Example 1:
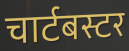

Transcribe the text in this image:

चार्टबस्टर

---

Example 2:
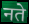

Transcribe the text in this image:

नते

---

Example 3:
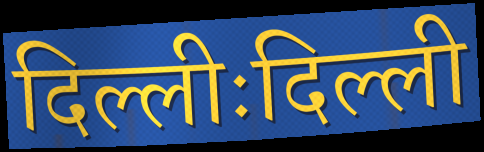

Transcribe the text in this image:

दिल्लीःदिल्ली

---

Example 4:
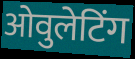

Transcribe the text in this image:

ओवुलेटिंग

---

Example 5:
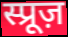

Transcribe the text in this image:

स्प्रूज़